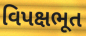
વિપક્ષભૂત